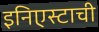
इनिएस्टाची